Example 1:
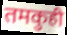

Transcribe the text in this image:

तमकुही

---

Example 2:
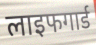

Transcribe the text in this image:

लाइफगार्ड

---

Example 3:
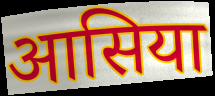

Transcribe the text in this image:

आसिया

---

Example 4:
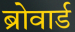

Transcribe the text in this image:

ब्रोवार्ड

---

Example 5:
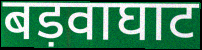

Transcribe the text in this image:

बड़वाघाट